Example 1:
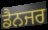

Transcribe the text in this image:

ਡੈਨਜਰ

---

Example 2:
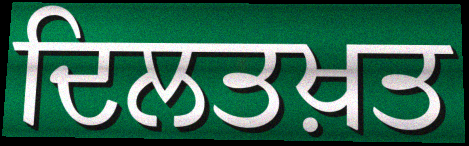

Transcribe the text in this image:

ਦਿਲਤਖ਼ਤ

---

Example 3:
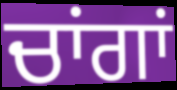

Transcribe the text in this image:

ਚਾਂਗਾਂ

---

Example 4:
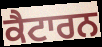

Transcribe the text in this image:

ਕੈਟਾਰਨ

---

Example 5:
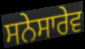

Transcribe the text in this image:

ਸਨੇਸਾਰੇਵ